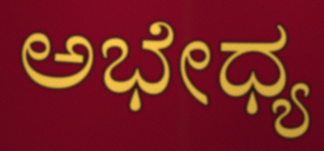
ಅಭೇಧ್ಯ